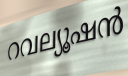
റവല്യൂഷൻ